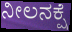
ನೀಲನಕ್ಷೆ